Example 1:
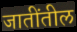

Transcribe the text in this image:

जातींतील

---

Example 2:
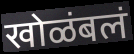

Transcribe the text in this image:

खोळंबलं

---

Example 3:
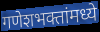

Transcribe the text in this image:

गणेशभक्तांमध्ये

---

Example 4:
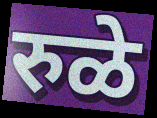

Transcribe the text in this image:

रुळे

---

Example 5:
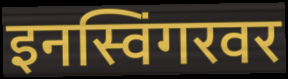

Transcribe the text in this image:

इनस्विंगरवर